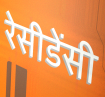
रेसीडेंसी